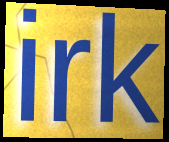
irk